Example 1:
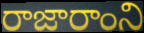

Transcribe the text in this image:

రాజారాంని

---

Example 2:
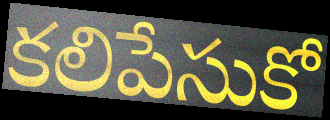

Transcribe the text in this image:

కలిపేసుకో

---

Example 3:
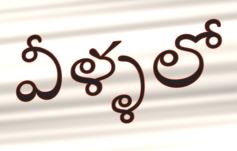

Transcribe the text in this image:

వీళ్ళలో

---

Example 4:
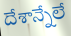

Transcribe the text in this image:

దేశాన్నేలే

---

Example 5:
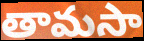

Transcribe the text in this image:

తామసా